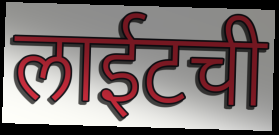
लाईटची